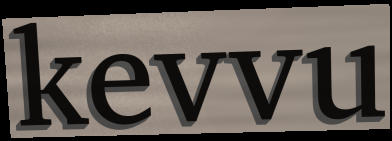
kevvu